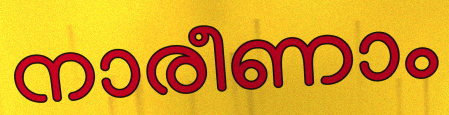
നാരീണാം